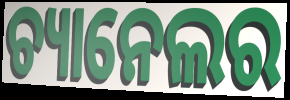
ଚ୍ୟାନେଲର